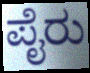
ಪೈರು